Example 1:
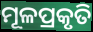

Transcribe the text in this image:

ମୂଳପ୍ରକୃତି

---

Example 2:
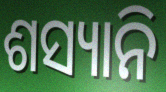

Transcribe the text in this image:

ଶସ୍ୟାନି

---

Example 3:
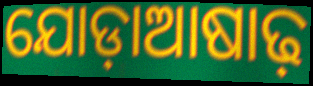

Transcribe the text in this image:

ଯୋଡ଼ାଆଷାଢ଼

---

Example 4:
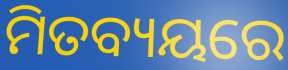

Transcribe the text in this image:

ମିତବ୍ୟୟରେ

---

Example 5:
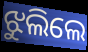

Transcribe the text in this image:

ଝୁଲିଲେ